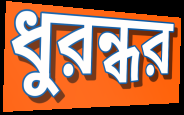
ধুরন্ধর